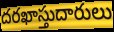
దరఖాస్తుదారులు